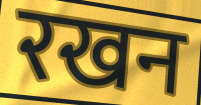
रखन